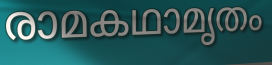
രാമകഥാമൃതം